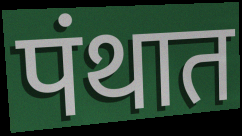
पंथात